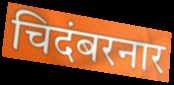
चिदंबरनार